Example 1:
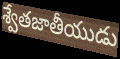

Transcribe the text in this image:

శ్వేతజాతీయుడు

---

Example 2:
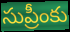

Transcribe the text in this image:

సుప్రీంకు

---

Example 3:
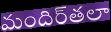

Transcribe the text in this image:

మందిర్‌తలా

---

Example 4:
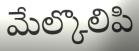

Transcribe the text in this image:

మేల్కొలిపి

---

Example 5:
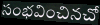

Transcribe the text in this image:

సంభవించినచో